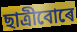
ছাত্ৰীবোৰে